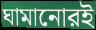
ঘামানোরই